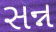
સન્ન